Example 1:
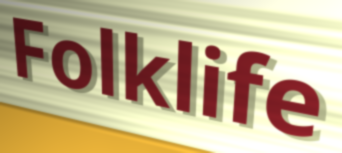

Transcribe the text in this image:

Folklife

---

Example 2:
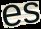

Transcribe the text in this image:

es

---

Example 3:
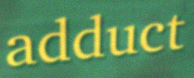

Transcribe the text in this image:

adduct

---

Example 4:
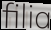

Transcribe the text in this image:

filia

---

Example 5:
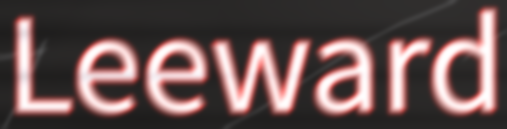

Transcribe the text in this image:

Leeward